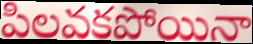
పిలవకపోయినా